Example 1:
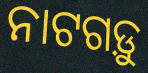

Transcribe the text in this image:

ନାଟଗଡ଼ୁ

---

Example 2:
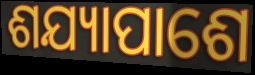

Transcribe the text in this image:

ଶଯ୍ୟାପାଶେ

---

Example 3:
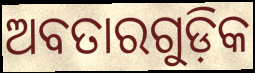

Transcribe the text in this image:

ଅବତାରଗୁଡ଼ିକ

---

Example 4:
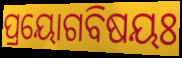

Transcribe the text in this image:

ପ୍ରୟୋଗବିଷୟଃ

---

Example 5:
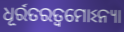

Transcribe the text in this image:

ଧୂର୍ରତରତ୍ୱମୋଽନ୍ୟା